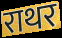
राथर